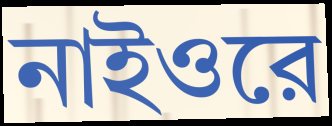
নাইওরে